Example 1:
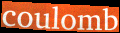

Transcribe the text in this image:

coulomb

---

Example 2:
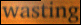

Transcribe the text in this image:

wasting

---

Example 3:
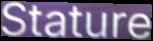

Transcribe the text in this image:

Stature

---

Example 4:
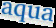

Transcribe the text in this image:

aqua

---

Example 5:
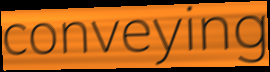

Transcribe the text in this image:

conveying